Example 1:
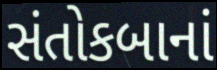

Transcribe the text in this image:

સંતોકબાનાં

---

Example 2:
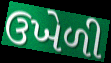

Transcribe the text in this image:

ઉખેળી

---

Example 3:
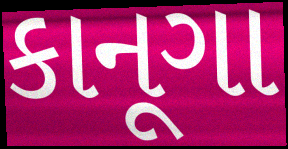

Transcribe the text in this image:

કાનૂગા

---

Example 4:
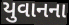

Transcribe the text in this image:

યુવાનના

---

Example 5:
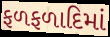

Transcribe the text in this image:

ફળફળાદિમાં